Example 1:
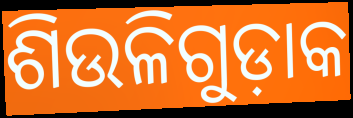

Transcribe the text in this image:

ଶିଉଳିଗୁଡ଼ାକ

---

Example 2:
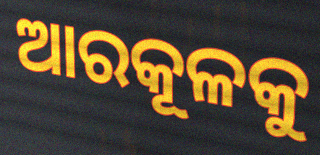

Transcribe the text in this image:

ଆରକୂଳକୁ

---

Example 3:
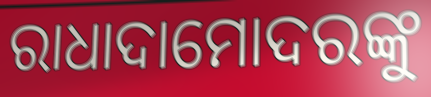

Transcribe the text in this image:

ରାଧାଦାମୋଦରଙ୍କୁ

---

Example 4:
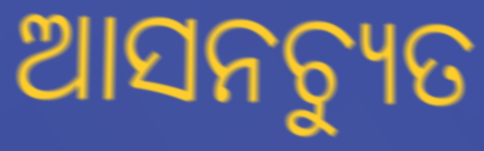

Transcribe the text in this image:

ଆସନଚ୍ୟୁତ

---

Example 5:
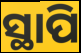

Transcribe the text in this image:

ସ୍ଥାପି